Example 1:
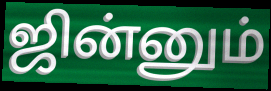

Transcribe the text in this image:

ஜின்னும்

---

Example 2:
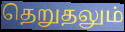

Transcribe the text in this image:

தெறுதலும்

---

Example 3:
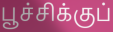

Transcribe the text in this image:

பூச்சிக்குப்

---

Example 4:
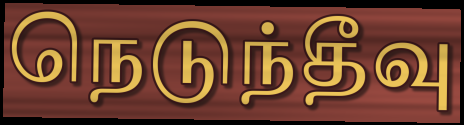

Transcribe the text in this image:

நெடுந்தீவு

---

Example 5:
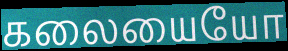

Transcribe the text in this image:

கலையையோ